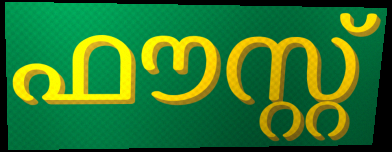
ഫൗസ്റ്റ്